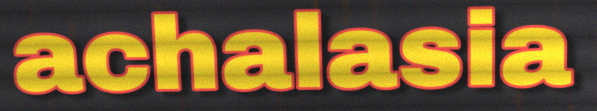
achalasia